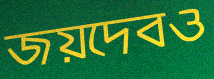
জয়দেবও